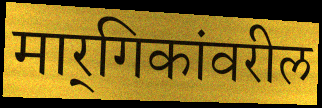
मार्गिकांवरील